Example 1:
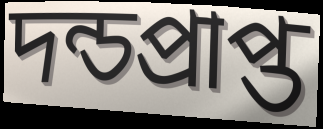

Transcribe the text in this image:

দন্ডপ্রাপ্ত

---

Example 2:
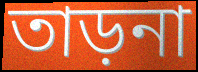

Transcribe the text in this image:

তাড়না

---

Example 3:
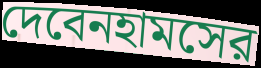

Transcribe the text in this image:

দেবেনহামসের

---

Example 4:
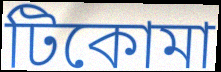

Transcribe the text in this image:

টিকোমা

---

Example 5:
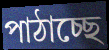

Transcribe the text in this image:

পাঠাচ্ছে